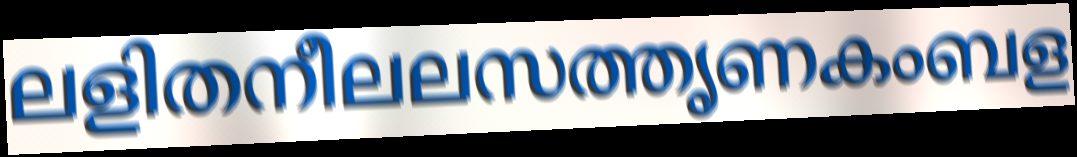
ലളിതനീലലസത്തൃണകംബള